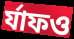
র্যাফও